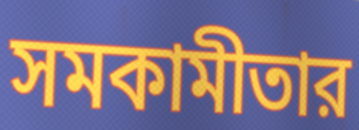
সমকামীতার